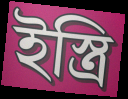
ইস্ত্রি